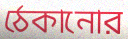
ঠেকানোর